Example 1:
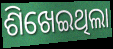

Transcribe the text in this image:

ଶିଖେଇଥିଲା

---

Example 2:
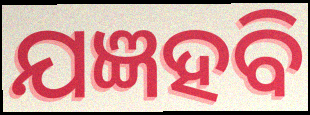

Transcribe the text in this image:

ଯଜ୍ଞହବି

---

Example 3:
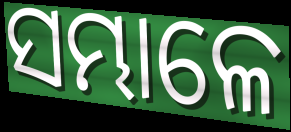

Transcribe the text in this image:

ସମ୍ଭାଳେ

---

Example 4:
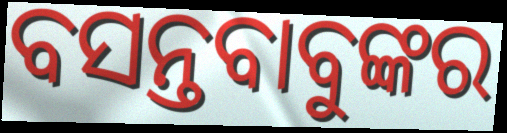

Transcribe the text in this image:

ବସନ୍ତବାବୁଙ୍କର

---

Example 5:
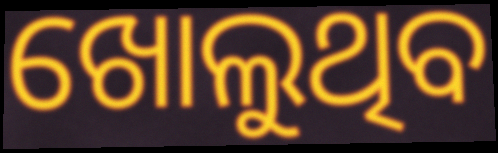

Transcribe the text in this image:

ଖୋଲୁଥିବ